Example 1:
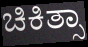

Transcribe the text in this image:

ಚಿಕಿತ್ಸಾ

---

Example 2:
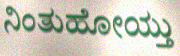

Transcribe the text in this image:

ನಿಂತುಹೋಯ್ತು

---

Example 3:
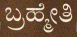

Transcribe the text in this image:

ಬ್ರಹ್ಮೇತಿ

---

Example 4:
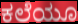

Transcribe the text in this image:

ಕಲೆಯೂ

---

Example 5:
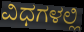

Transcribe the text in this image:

ವಿಧಗಳಲ್ಲಿ